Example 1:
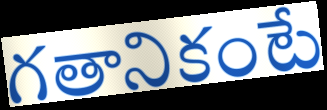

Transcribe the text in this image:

గతానికంటే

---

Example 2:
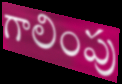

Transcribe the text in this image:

గాలింపు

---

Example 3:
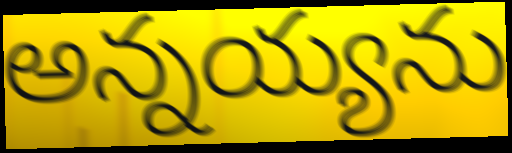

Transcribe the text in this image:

అన్నయ్యను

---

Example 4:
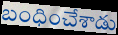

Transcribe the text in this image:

బంధించేశాడు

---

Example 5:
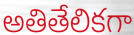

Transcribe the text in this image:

అతితేలికగా